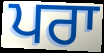
ਪਰਾ